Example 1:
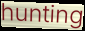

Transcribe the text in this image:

hunting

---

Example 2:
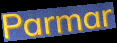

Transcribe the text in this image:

Parmar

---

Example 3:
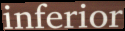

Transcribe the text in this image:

inferior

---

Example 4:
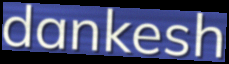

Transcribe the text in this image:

dankesh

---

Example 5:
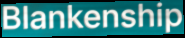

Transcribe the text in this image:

Blankenship